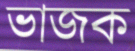
ভাজক